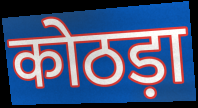
कोठड़ा